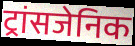
ट्रांसजेनिक